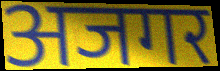
अजगर